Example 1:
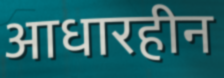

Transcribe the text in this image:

आधारहीन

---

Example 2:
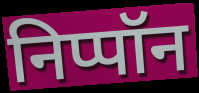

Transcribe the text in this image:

निप्पॉन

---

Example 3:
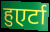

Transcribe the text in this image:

हुएर्टा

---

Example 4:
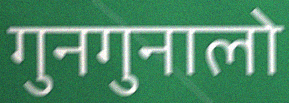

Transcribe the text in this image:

गुनगुनालो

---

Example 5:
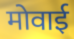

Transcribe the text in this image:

मोवाई